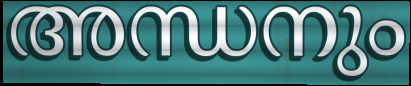
അന്ധനും